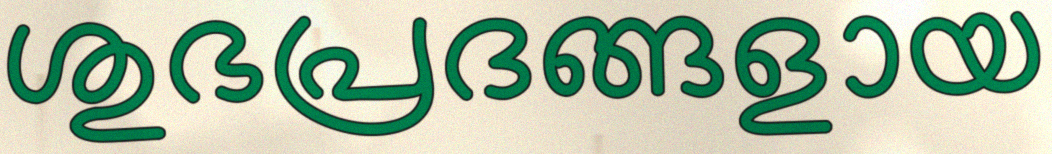
ശുഭപ്രദങ്ങളായ